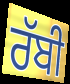
ਰੱਬੀ